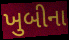
ખુબીના